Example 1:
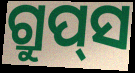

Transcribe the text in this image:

ଗ୍ରୁପ୍‌ସ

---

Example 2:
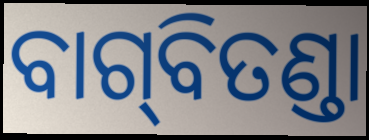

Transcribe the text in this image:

ବାଗ୍‌ବିତଣ୍ଡା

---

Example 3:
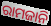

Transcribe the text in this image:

ରାମଜାନି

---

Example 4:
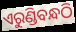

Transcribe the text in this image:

ଏରୁଣ୍ଡିବନ୍ଧଠି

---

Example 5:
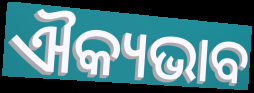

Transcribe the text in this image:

ଐକ୍ୟଭାବ